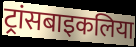
ट्रांसबाइकलिया